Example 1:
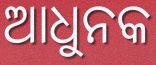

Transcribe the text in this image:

ଆଧୁନକ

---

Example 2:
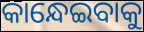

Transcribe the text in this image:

କାନ୍ଧେଇବାକୁ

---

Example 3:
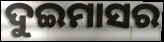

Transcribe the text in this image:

ଦୁଇମାସର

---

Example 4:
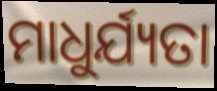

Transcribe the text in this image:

ମାଧୁର୍ଯ୍ୟତା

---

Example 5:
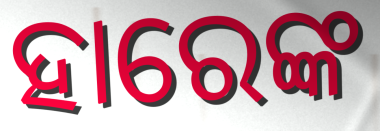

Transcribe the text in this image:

ହାରେଙ୍କ